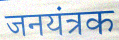
जनयंत्रक